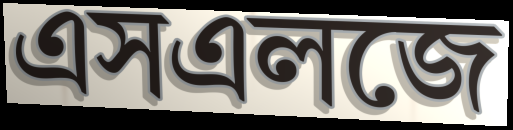
এসএলজে